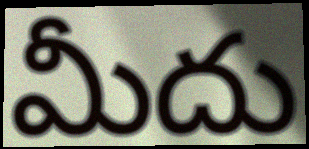
మీదు